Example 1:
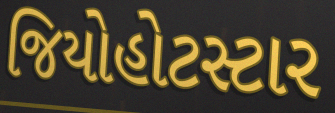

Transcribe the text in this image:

જિયોહોટસ્ટાર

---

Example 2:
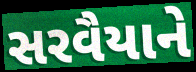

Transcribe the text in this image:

સરવૈયાને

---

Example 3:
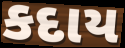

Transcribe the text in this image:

કદાય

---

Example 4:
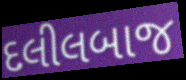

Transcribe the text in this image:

દલીલબાજ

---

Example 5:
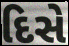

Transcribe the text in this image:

દિસે